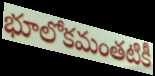
భూలోకమంతటికీ